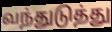
வந்துடுத்து